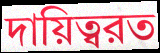
দায়িত্বরত